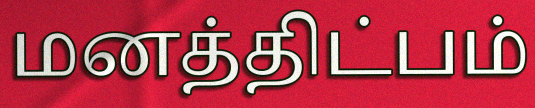
மனத்திட்பம்